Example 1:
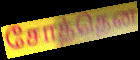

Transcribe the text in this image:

சோத்தென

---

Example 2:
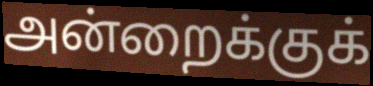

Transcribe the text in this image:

அன்றைக்குக்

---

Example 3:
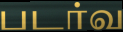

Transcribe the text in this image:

படர்வ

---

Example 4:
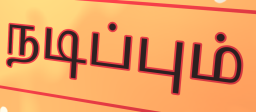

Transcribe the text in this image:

நடிப்பும்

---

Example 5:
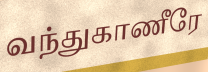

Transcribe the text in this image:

வந்துகாணீரே